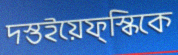
দস্তইয়েফ্স্কিকে